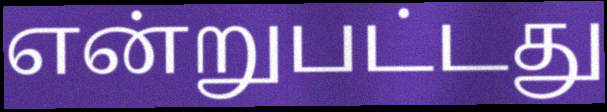
என்றுபட்டது